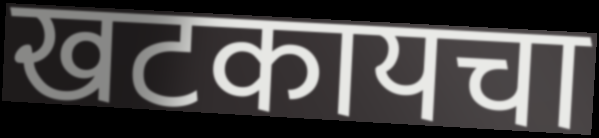
खटकायचा